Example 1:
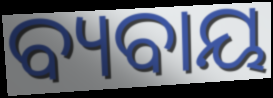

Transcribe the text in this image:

ବ୍ୟବାୟ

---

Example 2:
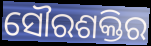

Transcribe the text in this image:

ସୌରଶକ୍ତିର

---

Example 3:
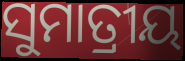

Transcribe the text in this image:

ସୁମାତ୍ରୀୟ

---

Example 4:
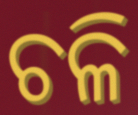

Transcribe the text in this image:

ଚଳି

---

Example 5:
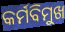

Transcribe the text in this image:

କର୍ମବିମୁଖ